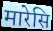
मारेसि